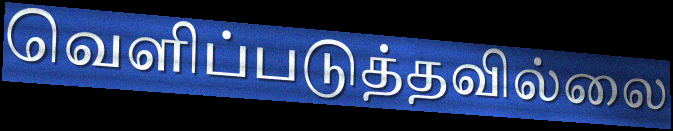
வெளிப்படுத்தவில்லை